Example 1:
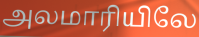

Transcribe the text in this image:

அலமாரியிலே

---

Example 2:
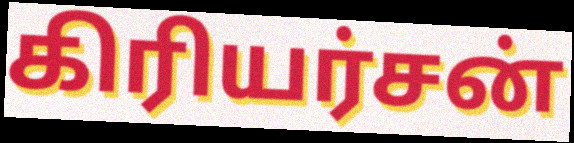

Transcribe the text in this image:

கிரியர்சன்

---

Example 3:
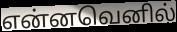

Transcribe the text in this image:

என்னவெனில்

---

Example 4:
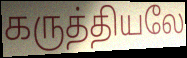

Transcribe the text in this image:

கருத்தியலே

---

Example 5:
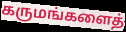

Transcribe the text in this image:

கருமங்களைத்